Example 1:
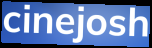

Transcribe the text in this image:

cinejosh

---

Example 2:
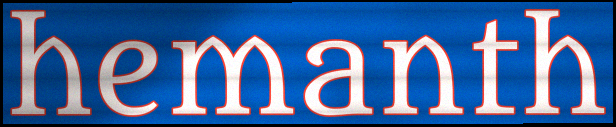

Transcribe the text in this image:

hemanth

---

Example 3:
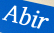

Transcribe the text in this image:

Abir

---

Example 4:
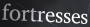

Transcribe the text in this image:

fortresses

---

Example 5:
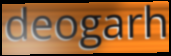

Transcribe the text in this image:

deogarh